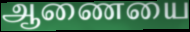
ஆணையை